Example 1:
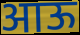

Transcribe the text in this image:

आऊ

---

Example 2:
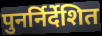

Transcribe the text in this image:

पुनर्निर्देशित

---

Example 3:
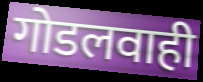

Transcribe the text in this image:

गोडलवाही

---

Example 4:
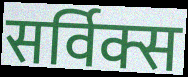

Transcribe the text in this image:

सर्विक्स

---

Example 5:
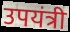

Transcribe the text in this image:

उपयंत्री